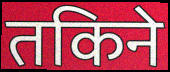
तकिने